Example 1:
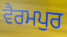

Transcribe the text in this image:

ਵੈਰਮਪੁਰ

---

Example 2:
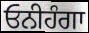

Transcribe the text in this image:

ਓਨੀਹੰਗਾ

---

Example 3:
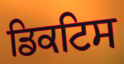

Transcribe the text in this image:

ਡਿਕਟਿਸ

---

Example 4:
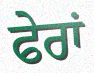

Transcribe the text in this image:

ਫੇਰਾਂ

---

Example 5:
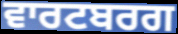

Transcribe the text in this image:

ਵਾਰਟਬਰਗ